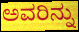
ಅವರಿನ್ನು